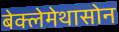
बेक्लेमेथासोन